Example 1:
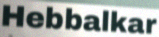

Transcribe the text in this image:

Hebbalkar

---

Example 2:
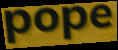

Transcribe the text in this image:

pope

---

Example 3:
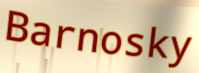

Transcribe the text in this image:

Barnosky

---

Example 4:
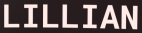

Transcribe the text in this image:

LILLIAN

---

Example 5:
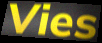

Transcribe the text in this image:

Vies